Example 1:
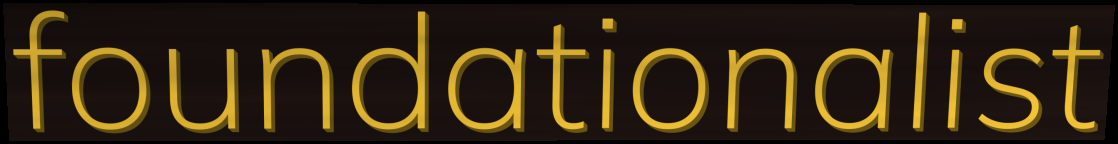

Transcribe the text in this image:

foundationalist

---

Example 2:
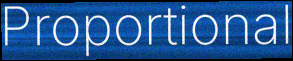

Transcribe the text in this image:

Proportional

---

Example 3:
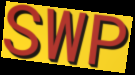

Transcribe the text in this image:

SWP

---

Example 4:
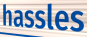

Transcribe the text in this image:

hassles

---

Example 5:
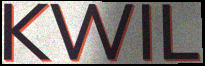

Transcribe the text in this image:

KWIL